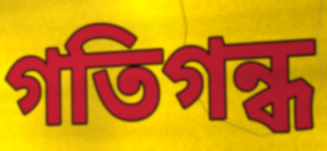
গতিগন্ধ